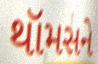
થૉમસને